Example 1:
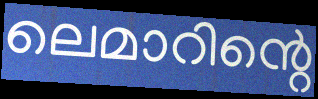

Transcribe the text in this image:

ലെമാറിന്റെ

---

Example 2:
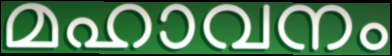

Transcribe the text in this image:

മഹാവനം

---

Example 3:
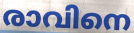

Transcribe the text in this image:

രാവിനെ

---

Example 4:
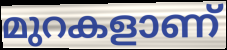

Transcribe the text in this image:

മുറകളാണ്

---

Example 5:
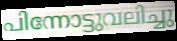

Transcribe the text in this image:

പിന്നോട്ടുവലിച്ചു